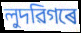
লুদৱিগৰে